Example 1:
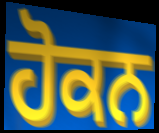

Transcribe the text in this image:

ਹੋਕਨ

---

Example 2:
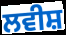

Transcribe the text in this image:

ਲਵੀਸ਼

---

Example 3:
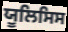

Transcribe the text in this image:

ਯੂਲਿਸਿਸ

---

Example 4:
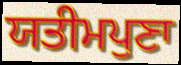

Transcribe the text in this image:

ਯਤੀਮਪੁਣਾ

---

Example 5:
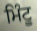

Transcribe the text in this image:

ਮਿੰਟੂ